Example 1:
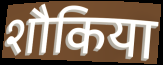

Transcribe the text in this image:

शौकिया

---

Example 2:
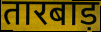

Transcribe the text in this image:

तारबाड़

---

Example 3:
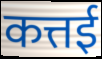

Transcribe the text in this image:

कत्तई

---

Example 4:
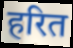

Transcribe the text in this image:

हरित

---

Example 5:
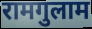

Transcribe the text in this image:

रामगुलाम